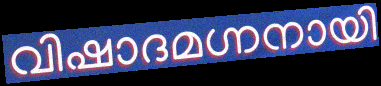
വിഷാദമഗ്നനായി